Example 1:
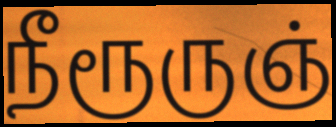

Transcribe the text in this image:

நீரூருஞ்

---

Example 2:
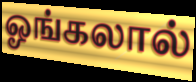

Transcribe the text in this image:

ஓங்கலால்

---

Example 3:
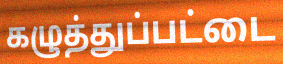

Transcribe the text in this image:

கழுத்துப்பட்டை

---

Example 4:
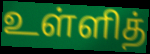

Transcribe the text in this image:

உள்ளித்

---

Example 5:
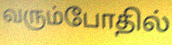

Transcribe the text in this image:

வரும்போதில்